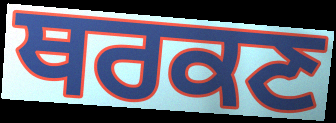
ਥਰਕਣ